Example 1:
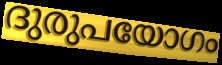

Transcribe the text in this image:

ദുരുപയോഗം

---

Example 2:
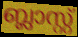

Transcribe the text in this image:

ബ്ലാസ്റ്റ്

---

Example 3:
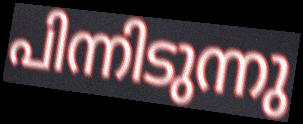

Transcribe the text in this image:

പിന്നിടുന്നു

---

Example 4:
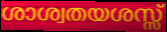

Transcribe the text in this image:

ശാശ്വതയശസ്സ്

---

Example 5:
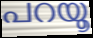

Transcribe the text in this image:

പറയൂ